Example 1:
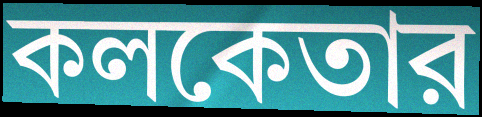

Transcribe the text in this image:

কলকেতার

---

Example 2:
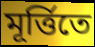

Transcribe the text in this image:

মূর্ত্তিতে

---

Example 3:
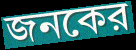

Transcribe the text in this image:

জনকের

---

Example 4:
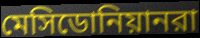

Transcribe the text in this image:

মেসিডোনিয়ানরা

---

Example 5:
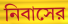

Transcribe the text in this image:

নিবাসের